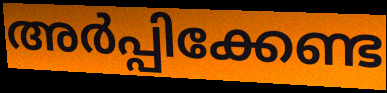
അർപ്പിക്കേണ്ട